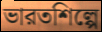
ভারতশিল্পে